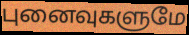
புனைவுகளுமே